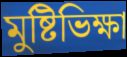
মুষ্টিভিক্ষা